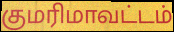
குமரிமாவட்டம்